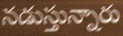
నడుస్తున్నారు